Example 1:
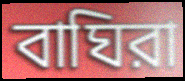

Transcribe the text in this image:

বাঘিরা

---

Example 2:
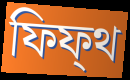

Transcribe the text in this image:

ফিফ্থ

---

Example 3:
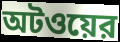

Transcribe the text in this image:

অটওয়ের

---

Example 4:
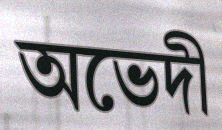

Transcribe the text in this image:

অভেদী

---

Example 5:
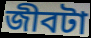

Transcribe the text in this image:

জীবটা